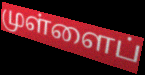
முள்ளைப்